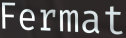
Fermat